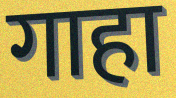
गाहा